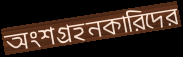
অংশগ্রহনকারিদের